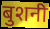
बुशनी